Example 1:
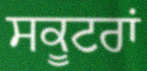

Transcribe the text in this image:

ਸਕੂਟਰਾਂ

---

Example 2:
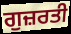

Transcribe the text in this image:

ਗੁਜ਼ਰਤੀ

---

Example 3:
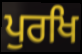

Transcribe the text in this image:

ਪੁਰਖਿ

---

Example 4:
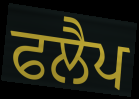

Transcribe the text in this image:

ਫਲੈਪ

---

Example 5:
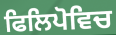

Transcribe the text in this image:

ਫਿਲਿਪੋਵਿਚ